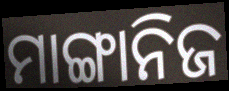
ମାଙ୍ଗାନିଜ